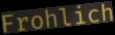
Frohlich